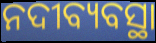
ନଦୀବ୍ୟବସ୍ଥା